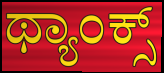
ಥ್ಯಾಂಕ್ಸ್